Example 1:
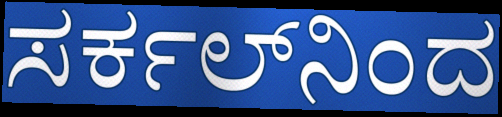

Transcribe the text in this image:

ಸರ್ಕಲ್‌ನಿಂದ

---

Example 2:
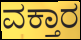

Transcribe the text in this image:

ವಕ್ತಾರ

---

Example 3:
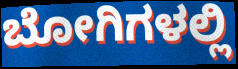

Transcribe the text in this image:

ಬೋಗಿಗಳಲ್ಲಿ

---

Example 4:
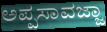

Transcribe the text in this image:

ಅಪ್ಪಸಾವಜ್ಜಾ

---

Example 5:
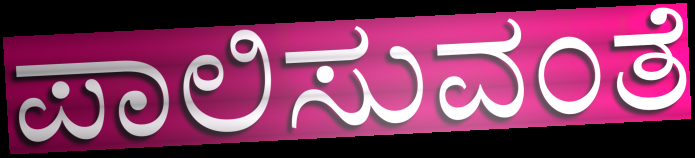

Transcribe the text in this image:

ಪಾಲಿಸುವಂತೆ